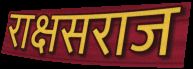
राक्षसराज